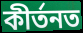
কীৰ্তনত